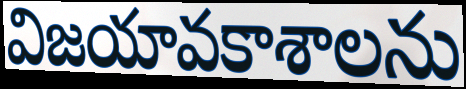
విజయావకాశాలను